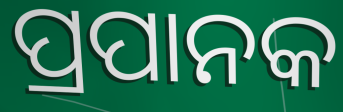
ପ୍ରପାନକ